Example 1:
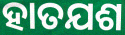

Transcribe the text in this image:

ହାତଯଶ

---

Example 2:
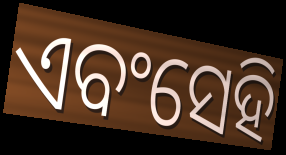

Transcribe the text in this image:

ଏବଂସେହି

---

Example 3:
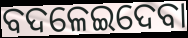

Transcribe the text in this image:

ବଦଳେଇଦେବା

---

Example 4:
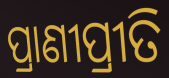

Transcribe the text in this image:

ପ୍ରାଣୀପ୍ରୀତି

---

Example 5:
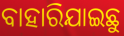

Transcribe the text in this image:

ବାହାରିଯାଇଛୁ